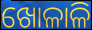
ଖୋଳାଳି